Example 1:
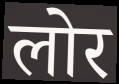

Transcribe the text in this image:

लोर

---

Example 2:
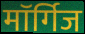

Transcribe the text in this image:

मॉर्गिज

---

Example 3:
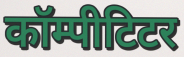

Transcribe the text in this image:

कॉम्पीटिटर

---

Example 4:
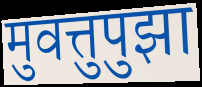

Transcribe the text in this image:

मुवत्तुपुझा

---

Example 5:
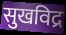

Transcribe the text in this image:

सुखविद्र